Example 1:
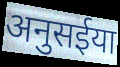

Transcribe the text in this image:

अनुसईया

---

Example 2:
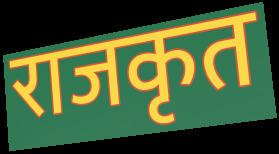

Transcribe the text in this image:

राजकृत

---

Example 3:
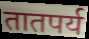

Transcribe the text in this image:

तातपर्य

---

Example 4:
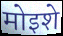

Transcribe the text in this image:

मोइशे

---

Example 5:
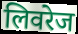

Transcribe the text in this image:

लिवरेज